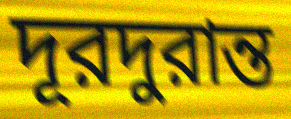
দূরদুরান্ত